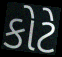
કોટે